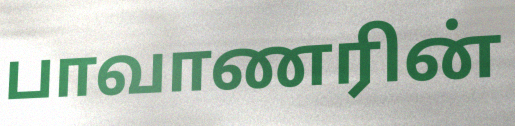
பாவாணரின்